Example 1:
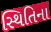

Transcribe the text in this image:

સ્થિતિના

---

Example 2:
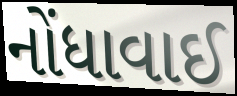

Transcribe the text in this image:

નોંધાવાઈ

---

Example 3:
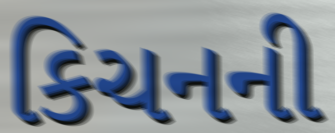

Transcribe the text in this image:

કિચનની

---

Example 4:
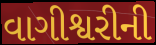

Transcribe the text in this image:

વાગીશ્વરીની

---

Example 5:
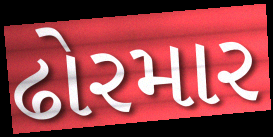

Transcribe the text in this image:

ઢોરમાર